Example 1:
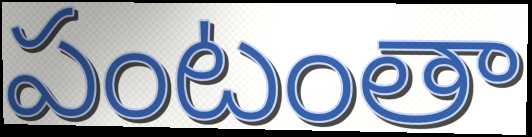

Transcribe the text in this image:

పంటంతా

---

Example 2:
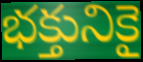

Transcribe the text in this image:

భక్తునికై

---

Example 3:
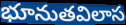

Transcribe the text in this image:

భూనుతవిలాస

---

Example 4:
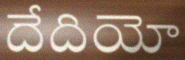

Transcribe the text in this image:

దేదియో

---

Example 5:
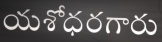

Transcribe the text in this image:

యశోధరగారు